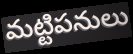
మట్టిపనులు